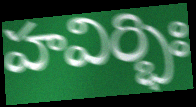
హవిర్భిః